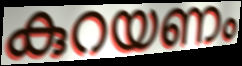
കുറയണം